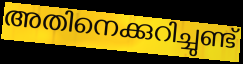
അതിനെക്കുറിച്ചുണ്ട്